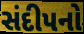
સંદીપનો